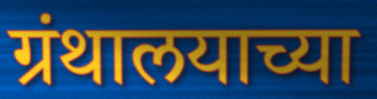
ग्रंथालयाच्या